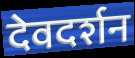
देवदर्शन